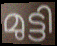
മുട്ടി